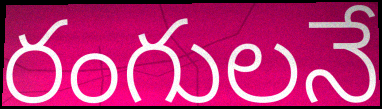
రంగులనే